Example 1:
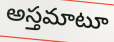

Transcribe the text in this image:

అస్తమాటూ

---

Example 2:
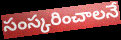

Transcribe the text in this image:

సంస్కరించాలనే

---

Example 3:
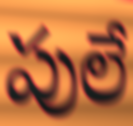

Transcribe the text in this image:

పులే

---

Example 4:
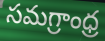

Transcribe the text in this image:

సమగ్రాంధ్ర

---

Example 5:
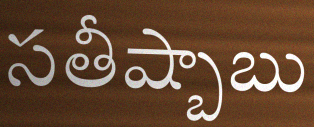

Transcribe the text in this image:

సతీష్బాబు